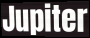
Jupiter